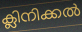
ക്ലിനിക്കൽ